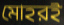
মোহরই